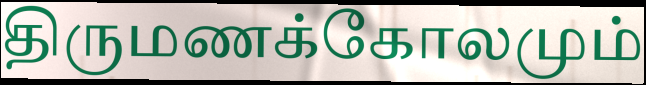
திருமணக்கோலமும்